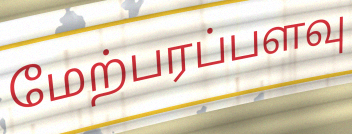
மேற்பரப்பளவு